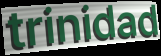
trinidad